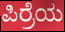
ಪಿರ್ರೆಯ